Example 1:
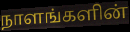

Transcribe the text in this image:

நாளங்களின்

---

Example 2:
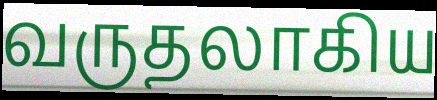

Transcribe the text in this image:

வருதலாகிய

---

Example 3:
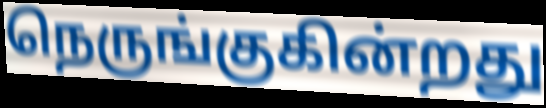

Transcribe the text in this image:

நெருங்குகின்றது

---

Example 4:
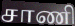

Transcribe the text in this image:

சாணி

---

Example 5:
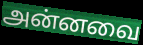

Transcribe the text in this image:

அன்னவை